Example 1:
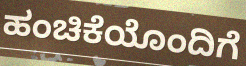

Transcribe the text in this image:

ಹಂಚಿಕೆಯೊಂದಿಗೆ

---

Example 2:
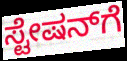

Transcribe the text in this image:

ಸ್ಟೇಷನ್‌ಗೆ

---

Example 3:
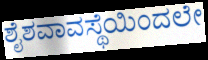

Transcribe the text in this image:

ಶೈಶವಾವಸ್ಥೆಯಿಂದಲೇ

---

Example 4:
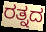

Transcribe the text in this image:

ರತ್ನದ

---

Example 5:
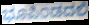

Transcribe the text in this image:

ಭೂಪಿಂಡದಲಿ